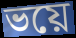
ভয়ে